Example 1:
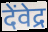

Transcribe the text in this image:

देंवेद्र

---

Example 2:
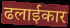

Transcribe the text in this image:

ढलाईकार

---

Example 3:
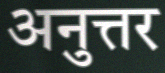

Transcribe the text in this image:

अनुत्तर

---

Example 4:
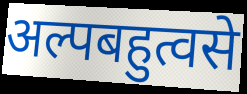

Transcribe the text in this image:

अल्पबहुत्वसे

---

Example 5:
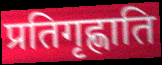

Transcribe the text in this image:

प्रतिगृह्णाति